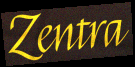
Zentra